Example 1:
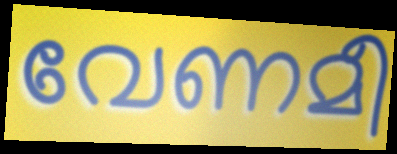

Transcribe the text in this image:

വേണമീ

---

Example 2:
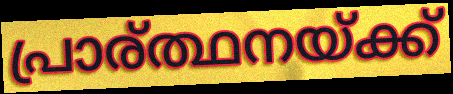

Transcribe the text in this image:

പ്രാര്ത്ഥനയ്ക്ക്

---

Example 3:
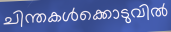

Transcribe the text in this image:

ചിന്തകൾക്കൊടുവിൽ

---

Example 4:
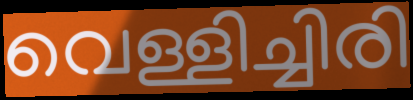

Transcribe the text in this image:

വെള്ളിച്ചിരി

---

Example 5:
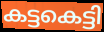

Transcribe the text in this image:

കട്ടകെട്ടി